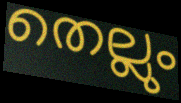
തെല്ലും